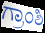
ಗ್ರಾಂಶಿ